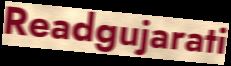
Readgujarati